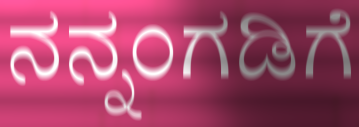
ನನ್ನಂಗಡಿಗೆ